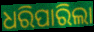
ଧରିପାରିଲା